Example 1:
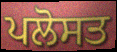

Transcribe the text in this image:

ਪਲੋਸਤ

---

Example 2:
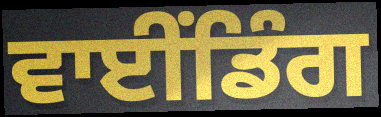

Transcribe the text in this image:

ਵਾਈਂਡਿੰਗ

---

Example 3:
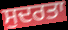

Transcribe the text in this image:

ਸੁਦਰਤਾ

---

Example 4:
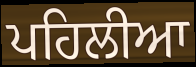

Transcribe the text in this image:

ਪਹਿਲੀਆ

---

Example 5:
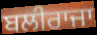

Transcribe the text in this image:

ਬਲੀਰਾਜਾ